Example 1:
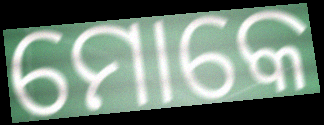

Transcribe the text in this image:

ମୋକେ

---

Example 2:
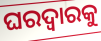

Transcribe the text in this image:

ଘରଦ୍ୱାରକୁ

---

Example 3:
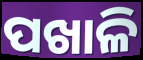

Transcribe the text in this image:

ପଖାଳି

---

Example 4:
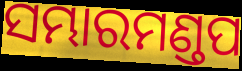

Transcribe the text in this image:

ସମ୍ଭାରମଣ୍ଡପ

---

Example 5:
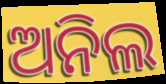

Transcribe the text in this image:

ଅନିଲ